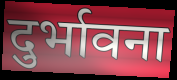
दुर्भावना